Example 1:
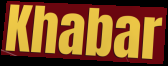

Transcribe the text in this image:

Khabar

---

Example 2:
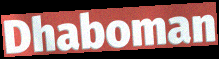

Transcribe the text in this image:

Dhaboman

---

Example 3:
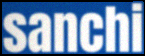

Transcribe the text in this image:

sanchi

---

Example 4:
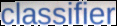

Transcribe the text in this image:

classifier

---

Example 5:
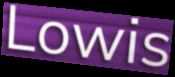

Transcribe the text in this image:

Lowis